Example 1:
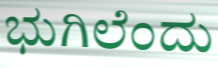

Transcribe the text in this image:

ಭುಗಿಲೆಂದು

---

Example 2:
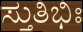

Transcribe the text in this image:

ಸ್ತುತಿಭಿಃ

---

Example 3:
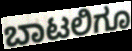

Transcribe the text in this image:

ಬಾಟಲಿಗೂ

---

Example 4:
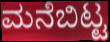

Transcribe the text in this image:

ಮನೆಬಿಟ್ಟ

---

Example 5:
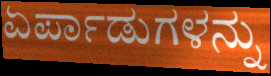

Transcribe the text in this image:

ಏರ್ಪಾಡುಗಳನ್ನು